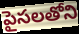
పైసలతోని